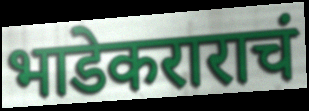
भाडेकराराचं